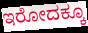
ಇರೋದಕ್ಕೂ